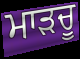
ਮਾੜਚੂ